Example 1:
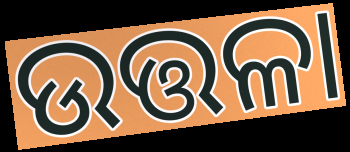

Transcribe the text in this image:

ଉତ୍ତଳା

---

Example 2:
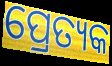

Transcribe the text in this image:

ପ୍ରେତ୍ୟକ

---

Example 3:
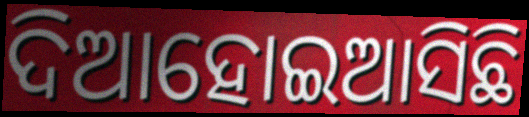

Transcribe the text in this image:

ଦିଆହୋଇଆସିଛି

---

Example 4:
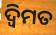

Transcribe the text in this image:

ଦ୍ୱିମତ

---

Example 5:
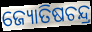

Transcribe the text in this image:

ଜ୍ୟୋତିଷଚନ୍ଦ୍ର